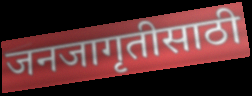
जनजागृतीसाठी